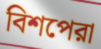
বিশপেরা